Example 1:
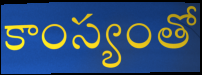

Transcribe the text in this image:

కాంస్యంతో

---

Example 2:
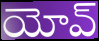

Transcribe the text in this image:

యోవ్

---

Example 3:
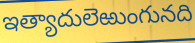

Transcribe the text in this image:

ఇత్యాదులెఱుంగునది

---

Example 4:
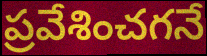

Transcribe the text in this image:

ప్రవేశించగనే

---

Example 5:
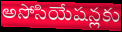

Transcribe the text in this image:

అసోసియేషన్లకు